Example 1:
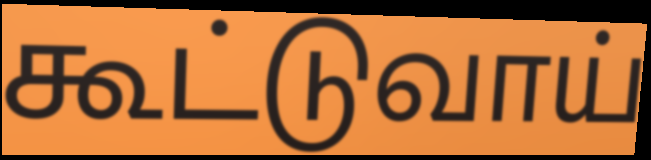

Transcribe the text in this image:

கூட்டுவாய்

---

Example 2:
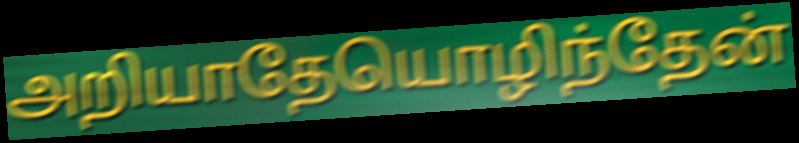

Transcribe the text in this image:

அறியாதேயொழிந்தேன்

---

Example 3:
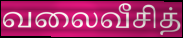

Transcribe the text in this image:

வலைவீசித்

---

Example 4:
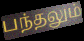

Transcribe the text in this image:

பந்தலும்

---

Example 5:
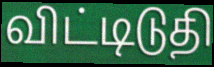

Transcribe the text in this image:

விட்டிடுதி